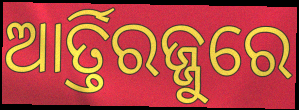
ଆର୍ତ୍ତିରଜ୍ଜୁରେ